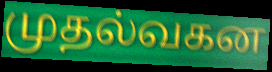
முதல்வகன